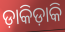
ଡ଼ାକିଡ଼ାକି